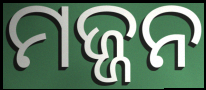
ମଜ୍ଜନ